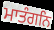
ਮਾਤੰਗਨਿ